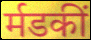
र्मडकीं